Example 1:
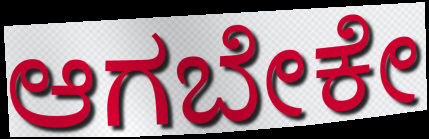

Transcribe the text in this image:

ಆಗಬೇಕೇ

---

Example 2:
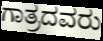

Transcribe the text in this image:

ಗಾತ್ರದವರು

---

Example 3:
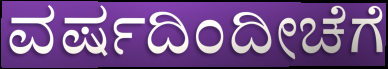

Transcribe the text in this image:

ವರ್ಷದಿಂದೀಚೆಗೆ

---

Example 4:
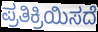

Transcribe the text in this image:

ಪ್ರತಿಕ್ರಿಯಿಸದೆ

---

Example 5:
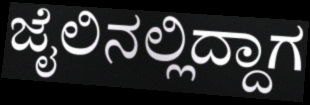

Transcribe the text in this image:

ಜೈಲಿನಲ್ಲಿದ್ದಾಗ